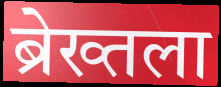
ब्रेख्तला